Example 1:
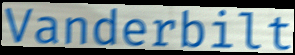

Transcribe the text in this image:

Vanderbilt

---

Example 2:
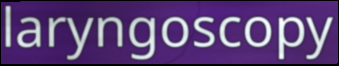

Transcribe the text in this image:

laryngoscopy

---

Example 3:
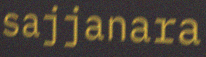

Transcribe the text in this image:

sajjanara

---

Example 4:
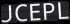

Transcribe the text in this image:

JCEPL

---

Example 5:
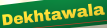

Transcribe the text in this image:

Dekhtawala